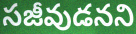
సజీవుడనని